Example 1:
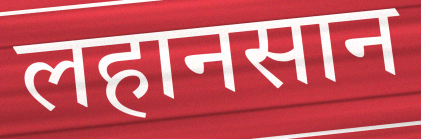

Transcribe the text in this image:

लहानसान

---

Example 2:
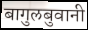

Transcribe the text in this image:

बागुलबुवानी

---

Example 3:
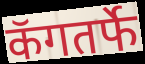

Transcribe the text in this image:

कॅगतर्फे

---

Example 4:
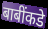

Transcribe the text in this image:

बाबींकडे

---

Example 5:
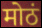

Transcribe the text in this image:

मोठं